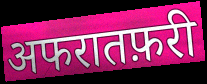
अफरातफ़री